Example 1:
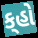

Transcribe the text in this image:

ક્‌હો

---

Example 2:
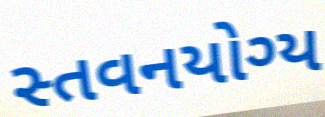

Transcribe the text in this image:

સ્તવનયોગ્ય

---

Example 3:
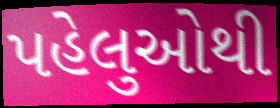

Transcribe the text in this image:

પહેલુઓથી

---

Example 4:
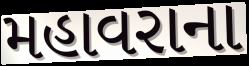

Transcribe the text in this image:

મહાવરાના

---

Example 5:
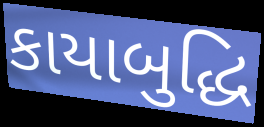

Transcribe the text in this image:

કાયાબુદ્ધિ